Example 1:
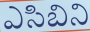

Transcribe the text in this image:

ఎసిబిని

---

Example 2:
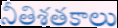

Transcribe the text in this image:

నీతిశతకాలు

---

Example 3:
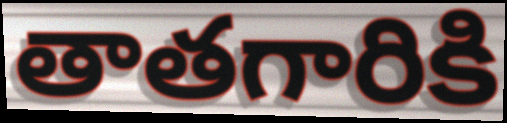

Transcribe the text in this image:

తాతగారికి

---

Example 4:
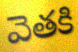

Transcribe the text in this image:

వెతకి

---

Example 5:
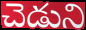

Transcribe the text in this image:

చెడుని